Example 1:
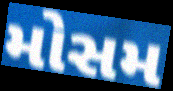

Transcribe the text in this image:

મોસમ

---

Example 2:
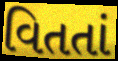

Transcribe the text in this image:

વિતતાં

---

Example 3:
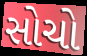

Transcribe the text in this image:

સોચો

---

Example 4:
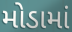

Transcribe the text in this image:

મોડામાં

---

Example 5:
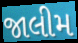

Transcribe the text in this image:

જાલીમ